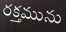
రక్తమును